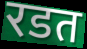
रडत